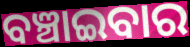
ବଞ୍ଚାଇବାର